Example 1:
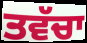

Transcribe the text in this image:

ਤਵੱਚਾ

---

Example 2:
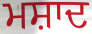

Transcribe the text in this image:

ਮਸ਼ਾਦ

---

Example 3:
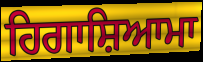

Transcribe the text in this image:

ਹਿਗਾਸ਼ਿਆਮਾ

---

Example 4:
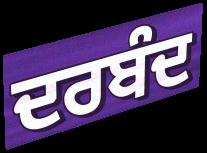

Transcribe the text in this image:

ਦਰਬੰਦ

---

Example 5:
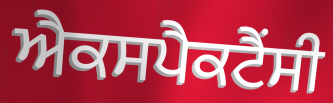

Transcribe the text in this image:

ਐਕਸਪੈਕਟੈਂਸੀ